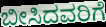
ಬೀಸಿದವರಿಗೆ